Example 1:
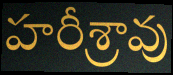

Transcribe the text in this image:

హరీశ్రావు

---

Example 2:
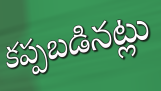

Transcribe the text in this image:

కప్పబడినట్లు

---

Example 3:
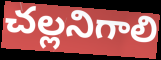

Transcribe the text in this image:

చల్లనిగాలి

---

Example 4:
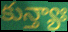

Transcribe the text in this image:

కున్త్యాః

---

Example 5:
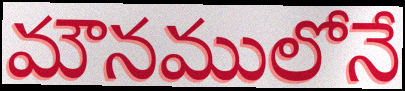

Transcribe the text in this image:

మౌనములోనే